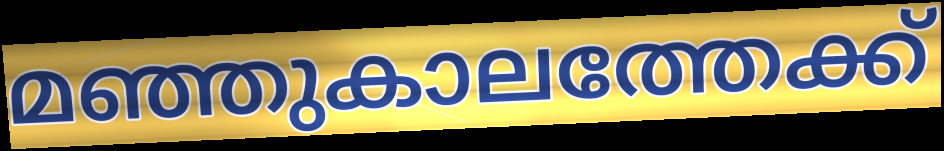
മഞ്ഞുകാലത്തേക്ക്